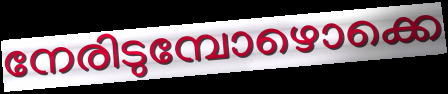
നേരിടുമ്പോഴൊക്കെ